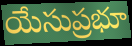
యేసుప్రభూ